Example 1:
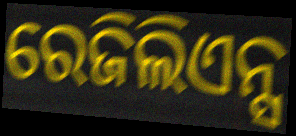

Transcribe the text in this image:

ରେଜିଲିଏନ୍ସ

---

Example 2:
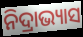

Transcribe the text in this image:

ନିଦ୍ରାଭ୍ୟାସ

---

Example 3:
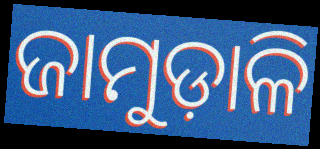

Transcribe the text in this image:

ଜାମୁଡ଼ାଳି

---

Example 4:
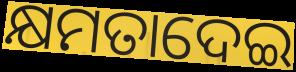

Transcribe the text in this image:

କ୍ଷମତାଦେଇ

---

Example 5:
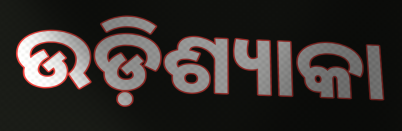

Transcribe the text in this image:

ଉଡ଼ିଶ୍ୟାକା